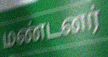
மண்டனர்